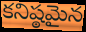
కనిష్ఠమైన